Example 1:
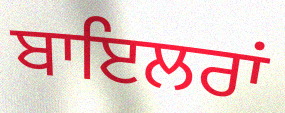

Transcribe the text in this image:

ਬਾਇਲਰਾਂ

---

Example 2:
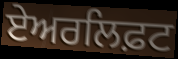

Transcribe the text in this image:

ਏਅਰਲਿਫ਼ਟ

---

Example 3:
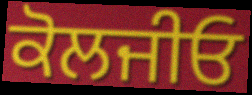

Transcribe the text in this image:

ਕੋਲਜੀਓ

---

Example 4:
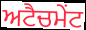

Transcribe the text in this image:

ਅਟੈਚਮੇਂਟ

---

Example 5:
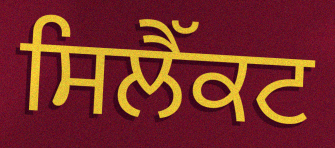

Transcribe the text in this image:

ਸਿਲੈੱਕਟ